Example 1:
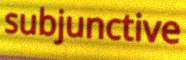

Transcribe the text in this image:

subjunctive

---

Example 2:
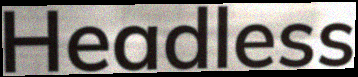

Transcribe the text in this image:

Headless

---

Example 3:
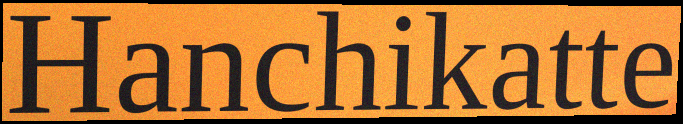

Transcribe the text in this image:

Hanchikatte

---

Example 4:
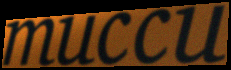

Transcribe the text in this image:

muccu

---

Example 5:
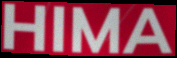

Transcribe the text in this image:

HIMA